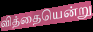
வித்தையென்று